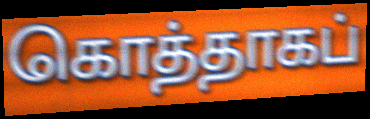
கொத்தாகப்